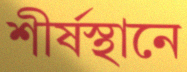
শীর্ষস্থানে